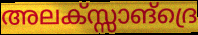
അലക്സ്സാങ്ദ്രെ